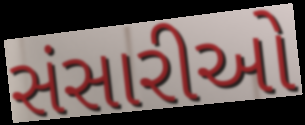
સંસારીઓ